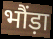
भौंड़ा